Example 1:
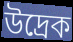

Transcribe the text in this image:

উদ্রেক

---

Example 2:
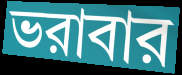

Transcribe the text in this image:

ভরাবার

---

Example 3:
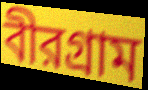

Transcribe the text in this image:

বীরগ্রাম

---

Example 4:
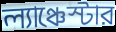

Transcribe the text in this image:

ল্যাঞ্চেস্টার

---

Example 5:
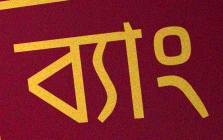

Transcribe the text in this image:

ব্যাং